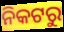
ନିକଟରୁ